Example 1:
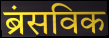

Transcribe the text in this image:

ब्रंसविक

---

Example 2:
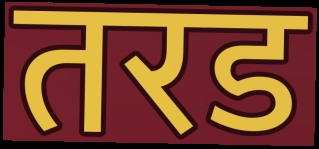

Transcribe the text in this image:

तरड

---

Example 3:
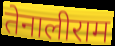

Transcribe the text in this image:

तेनालीराम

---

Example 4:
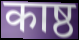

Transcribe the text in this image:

काष्ठ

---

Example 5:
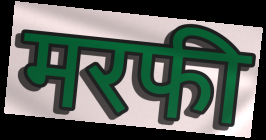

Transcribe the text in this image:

मरफी